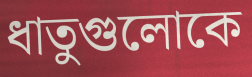
ধাতুগুলোকে